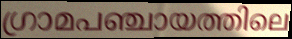
ഗ്രാമപഞ്ചായത്തിലെ